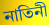
নাতিনী